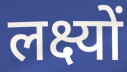
लक्ष्यों